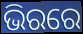
ଭିରରେ